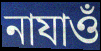
নাযাওঁ